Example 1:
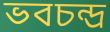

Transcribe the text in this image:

ভবচন্দ্র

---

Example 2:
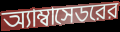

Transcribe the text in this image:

অ্যাম্বাসেডরের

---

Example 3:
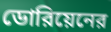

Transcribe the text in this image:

ডোরিয়েনের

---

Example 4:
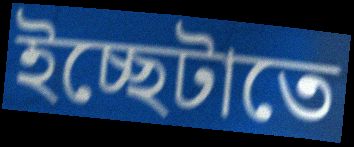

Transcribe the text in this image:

ইচ্ছেটাতে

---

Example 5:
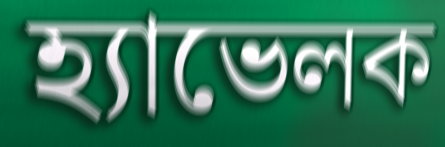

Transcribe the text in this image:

হ্যাভেলক